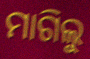
ମାଗିଲୁ